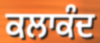
ਕਲਾਕੰਦ